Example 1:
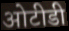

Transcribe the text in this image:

ओटीडी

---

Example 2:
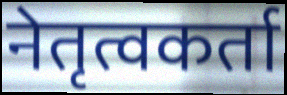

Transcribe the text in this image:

नेतृत्‍वकर्ता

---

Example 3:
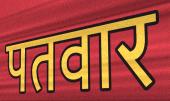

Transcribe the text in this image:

पतवार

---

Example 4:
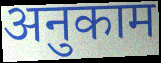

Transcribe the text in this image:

अनुकाम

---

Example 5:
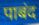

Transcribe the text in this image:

पाबंद